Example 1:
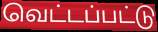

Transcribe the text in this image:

வெட்டப்பட்டு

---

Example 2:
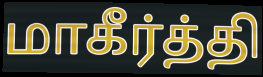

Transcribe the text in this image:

மாகீர்த்தி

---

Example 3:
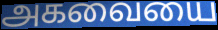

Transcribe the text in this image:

அகவையை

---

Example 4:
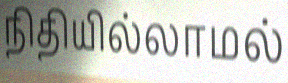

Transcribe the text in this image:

நிதியில்லாமல்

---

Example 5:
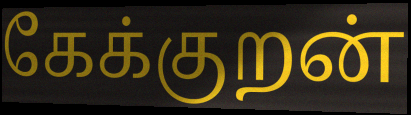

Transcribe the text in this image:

கேக்குறன்